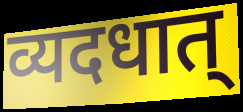
व्यदधात्